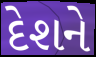
દેશને